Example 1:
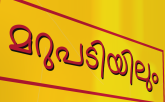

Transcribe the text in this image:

മറുപടിയിലും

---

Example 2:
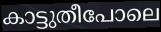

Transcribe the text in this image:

കാട്ടുതീപോലെ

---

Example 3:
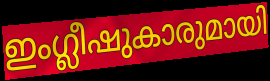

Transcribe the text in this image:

ഇംഗ്ലീഷുകാരുമായി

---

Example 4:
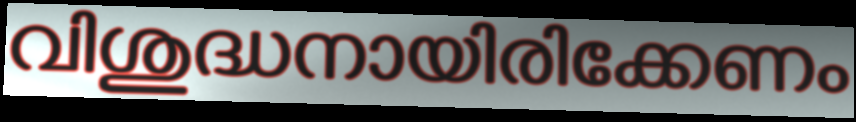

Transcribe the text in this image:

വിശുദ്ധനായിരിക്കേണം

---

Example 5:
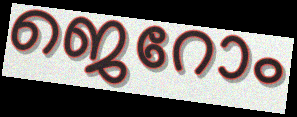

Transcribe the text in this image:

ജെറോം